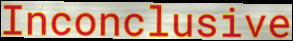
Inconclusive